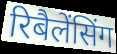
रिबैलेंसिंग